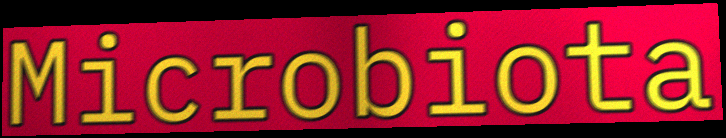
Microbiota